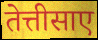
तेत्तीसाए